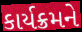
કાર્યક્રમને